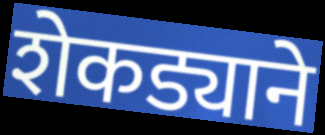
शेकड्याने